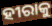
ହୀରାକୁ